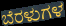
ಬೆರಳುಗಳ